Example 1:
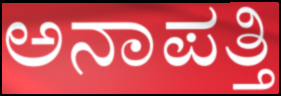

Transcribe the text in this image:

ಅನಾಪತ್ತಿ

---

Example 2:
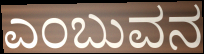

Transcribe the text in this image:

ಎಂಬುವನ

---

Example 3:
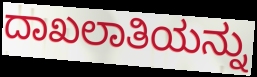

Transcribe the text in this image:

ದಾಖಲಾತಿಯನ್ನು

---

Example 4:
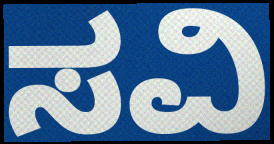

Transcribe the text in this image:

ಸವಿ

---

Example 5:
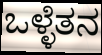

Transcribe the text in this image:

ಒಳ್ಳೆತನ